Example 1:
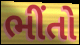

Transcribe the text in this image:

ભીંતો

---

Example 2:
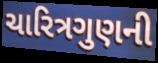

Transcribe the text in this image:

ચારિત્રગુણની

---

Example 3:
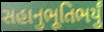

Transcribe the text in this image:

સહાનુભૂતિભર્યું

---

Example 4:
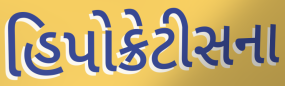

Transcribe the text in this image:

હિપોક્રેટીસના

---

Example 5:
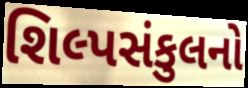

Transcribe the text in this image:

શિલ્પસંકુલનો